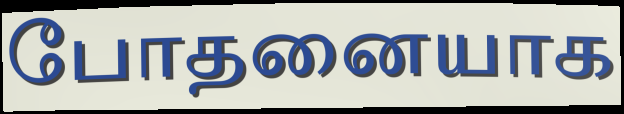
போதனையாக